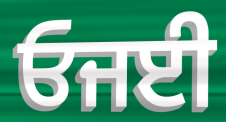
ਓਜਈ